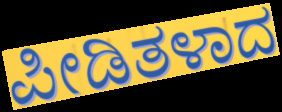
ಪೀಡಿತಳಾದ